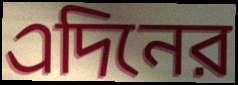
এদিনের